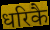
धरिकै